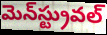
మెన్‌స్ట్రువల్